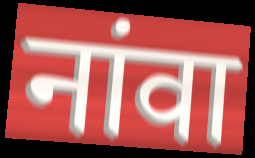
नांवा